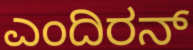
ಎಂದಿರನ್